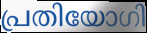
പ്രതിയോഗി